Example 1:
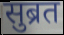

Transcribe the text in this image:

सुब्रत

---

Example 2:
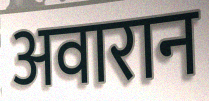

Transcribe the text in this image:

अवारान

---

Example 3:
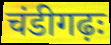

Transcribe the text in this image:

चंडीगढ़ः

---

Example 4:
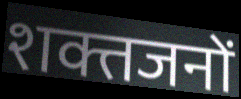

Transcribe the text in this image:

शक्तजनों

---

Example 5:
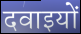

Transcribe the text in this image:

दवाइयों